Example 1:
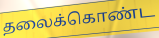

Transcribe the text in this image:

தலைக்கொண்ட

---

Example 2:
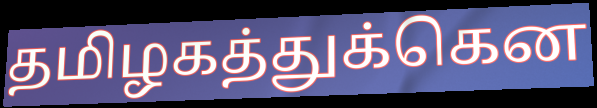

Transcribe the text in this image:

தமிழகத்துக்கென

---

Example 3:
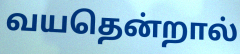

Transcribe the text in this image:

வயதென்றால்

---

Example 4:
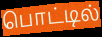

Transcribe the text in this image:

பொட்டில்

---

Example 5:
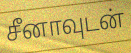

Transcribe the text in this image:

சீனாவுடன்